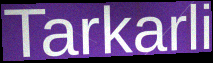
Tarkarli